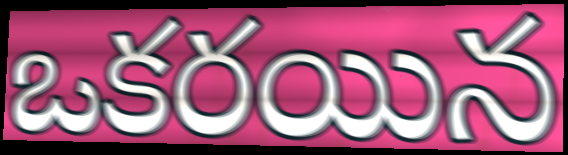
ఒకరయిన